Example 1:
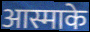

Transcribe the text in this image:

आस्माके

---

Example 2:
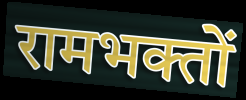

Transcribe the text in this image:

रामभक्तों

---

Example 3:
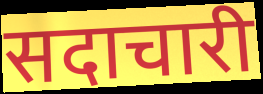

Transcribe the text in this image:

सदाचारी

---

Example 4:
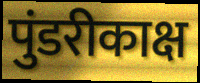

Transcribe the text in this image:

पुंडरीकाक्ष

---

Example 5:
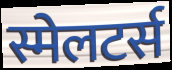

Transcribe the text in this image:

स्मेलटर्स